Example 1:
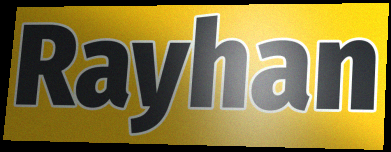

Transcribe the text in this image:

Rayhan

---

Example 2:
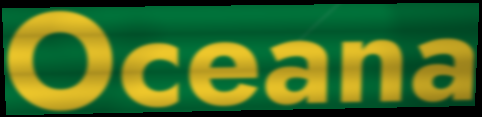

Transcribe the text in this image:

Oceana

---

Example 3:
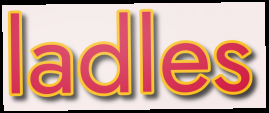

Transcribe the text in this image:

ladles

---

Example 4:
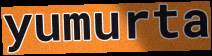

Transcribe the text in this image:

yumurta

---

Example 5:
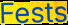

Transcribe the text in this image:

Fests